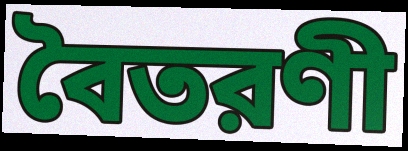
বৈতরণী